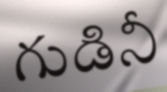
గుడినీ